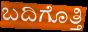
ಬದಿಗೊತ್ತಿ